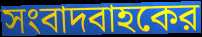
সংবাদবাহকের